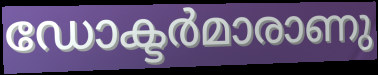
ഡോക്ടർമാരാണു